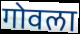
गोवला